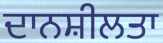
ਦਾਨਸ਼ੀਲਤਾ